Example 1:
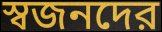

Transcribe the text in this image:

স্বজনদের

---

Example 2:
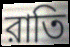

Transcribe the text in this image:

রাতি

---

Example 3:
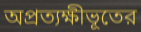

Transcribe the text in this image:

অপ্রত্যক্ষীভূতের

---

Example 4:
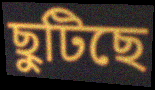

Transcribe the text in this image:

ছুটিছে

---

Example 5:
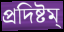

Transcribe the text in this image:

প্রদিষ্টম্